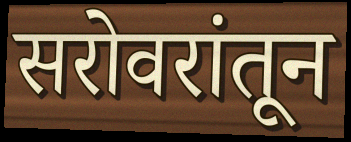
सरोवरांतून